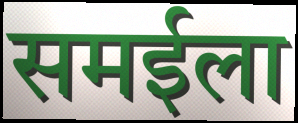
समईला